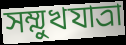
সম্মুখযাত্রা